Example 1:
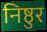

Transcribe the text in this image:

निष्ठुर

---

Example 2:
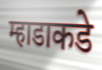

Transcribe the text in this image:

म्हाडाकडे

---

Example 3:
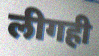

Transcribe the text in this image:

लीगही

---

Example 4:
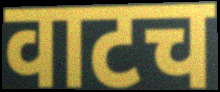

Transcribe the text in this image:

वाटच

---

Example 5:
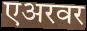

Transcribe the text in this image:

एअरवर